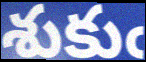
శుకుఁ